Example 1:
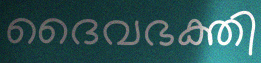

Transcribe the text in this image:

ദൈവഭക്തി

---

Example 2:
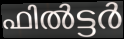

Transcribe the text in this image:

ഫിൽട്ടർ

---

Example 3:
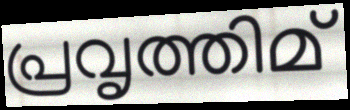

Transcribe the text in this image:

പ്രവൃത്തിമ്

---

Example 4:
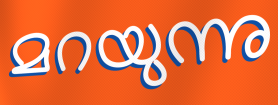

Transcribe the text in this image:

മറയുന്നു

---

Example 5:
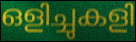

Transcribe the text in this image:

ഒളിച്ചുകളി